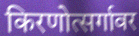
किरणोत्सर्गावर